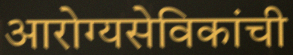
आरोग्यसेविकांची